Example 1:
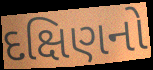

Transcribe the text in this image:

દક્ષિણનો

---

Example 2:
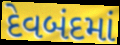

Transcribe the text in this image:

દેવબંદમાં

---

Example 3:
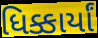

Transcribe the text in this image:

ધિક્કાર્યાં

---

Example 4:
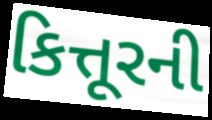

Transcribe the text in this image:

કિત્તૂરની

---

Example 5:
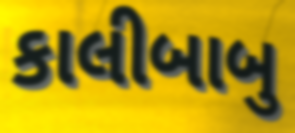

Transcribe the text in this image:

કાલીબાબુ